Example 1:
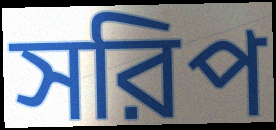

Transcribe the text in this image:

সরিপ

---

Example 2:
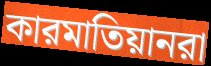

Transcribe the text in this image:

কারমাতিয়ানরা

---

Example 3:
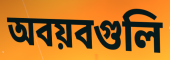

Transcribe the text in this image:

অবয়বগুলি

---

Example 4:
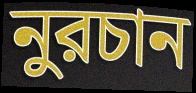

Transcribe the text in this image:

নুরচান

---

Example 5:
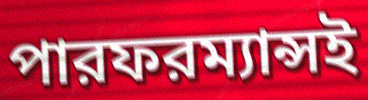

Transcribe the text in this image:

পারফরম্যান্সই